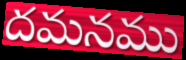
దమనము